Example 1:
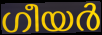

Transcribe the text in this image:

ഗീയർ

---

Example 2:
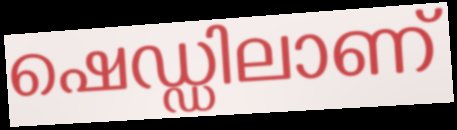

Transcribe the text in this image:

ഷെഡ്ഡിലാണ്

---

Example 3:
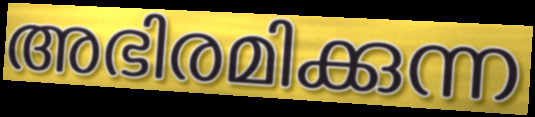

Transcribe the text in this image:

അഭിരമിക്കുന്ന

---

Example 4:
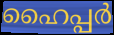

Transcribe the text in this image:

ഹൈപ്പർ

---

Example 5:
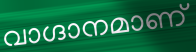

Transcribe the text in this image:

വാഗ്ദാനമാണ്